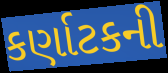
કર્ણાટકની